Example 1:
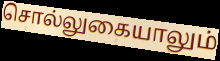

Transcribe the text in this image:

சொல்லுகையாலும்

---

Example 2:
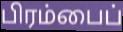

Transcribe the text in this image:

பிரம்பைப்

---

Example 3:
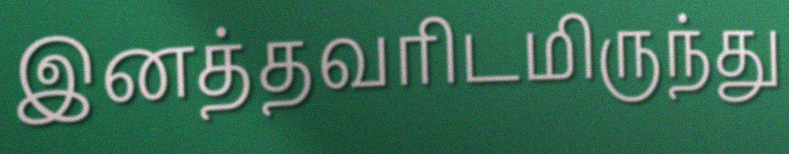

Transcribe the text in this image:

இனத்தவரிடமிருந்து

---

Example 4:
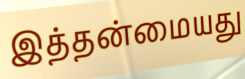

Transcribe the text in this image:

இத்தன்மையது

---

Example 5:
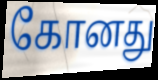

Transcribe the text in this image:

கோனது